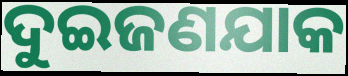
ଦୁଇଜଣଯାକ